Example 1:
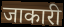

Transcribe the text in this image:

जाकारी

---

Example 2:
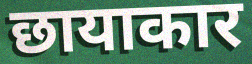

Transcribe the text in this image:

छायाकार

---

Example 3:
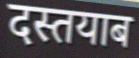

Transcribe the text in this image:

दस्तयाब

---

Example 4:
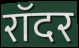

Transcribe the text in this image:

रॉदर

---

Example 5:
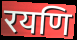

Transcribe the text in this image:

रयणि